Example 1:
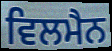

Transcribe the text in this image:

ਵਿਲਮੈਨ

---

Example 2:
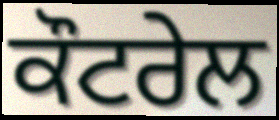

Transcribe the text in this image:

ਕੌਟਰੇਲ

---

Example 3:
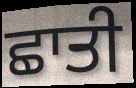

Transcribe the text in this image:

ਛਾਤੀ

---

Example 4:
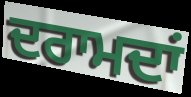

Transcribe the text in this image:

ਦਰਾਮਦਾਂ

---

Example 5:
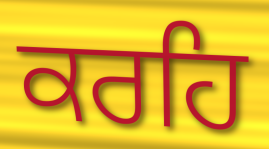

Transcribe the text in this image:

ਕਰਹਿ